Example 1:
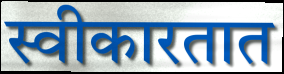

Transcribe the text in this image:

स्वीकारतात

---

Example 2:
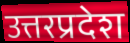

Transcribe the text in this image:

उत्तरप्रदेश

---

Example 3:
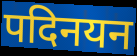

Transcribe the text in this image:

पदिनयन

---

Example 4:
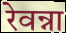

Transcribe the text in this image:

रेवन्ना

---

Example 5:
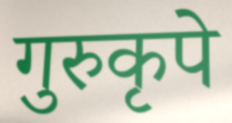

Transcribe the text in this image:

गुरुकृपे